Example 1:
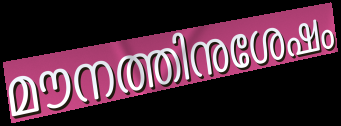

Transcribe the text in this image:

മൗനത്തിനുശേഷം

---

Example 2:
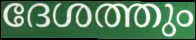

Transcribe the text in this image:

ദേശത്തും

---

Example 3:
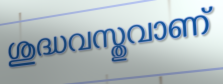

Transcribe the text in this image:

ശുദ്ധവസ്തുവാണ്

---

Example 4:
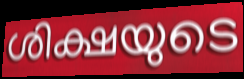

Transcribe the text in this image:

ശിക്ഷയുടെ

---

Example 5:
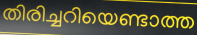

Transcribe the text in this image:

തിരിച്ചറിയെണ്ടാത്ത